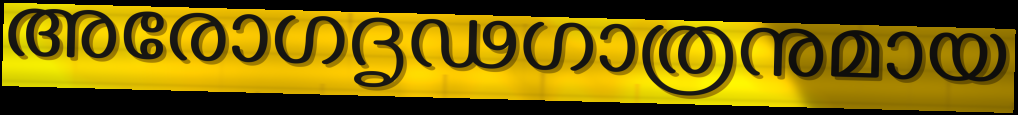
അരോഗദൃഢഗാത്രനുമായ